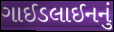
ગાઈડલાઈનનું